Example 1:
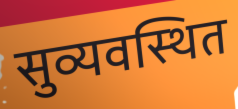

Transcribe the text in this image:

सुव्यवस्थित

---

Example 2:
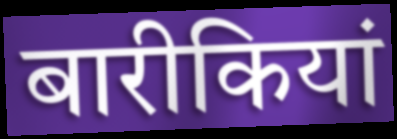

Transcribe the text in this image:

बारीकियां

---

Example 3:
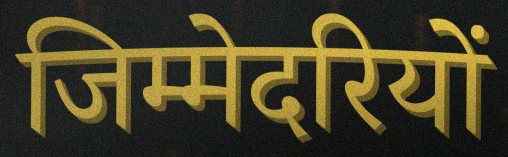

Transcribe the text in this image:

जिम्मेदरियों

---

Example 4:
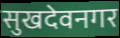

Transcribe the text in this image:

सुखदेवनगर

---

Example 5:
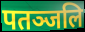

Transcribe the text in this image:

पतञ्जलि